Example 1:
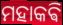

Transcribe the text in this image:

ମହାକଵି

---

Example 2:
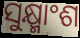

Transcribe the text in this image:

ସୁକ୍ଷ୍ମାଂଶ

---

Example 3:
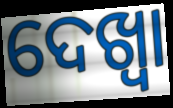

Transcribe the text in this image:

ଦେଖ୍ବା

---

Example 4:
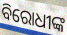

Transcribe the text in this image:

ବିରୋଧୀଙ୍କ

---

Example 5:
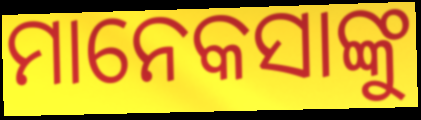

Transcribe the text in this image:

ମାନେକସାଙ୍କୁ